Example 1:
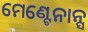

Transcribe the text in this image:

ମେଣ୍ଟେନାନ୍ସ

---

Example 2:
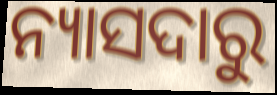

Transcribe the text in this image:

ନ୍ୟାସଦାରୁ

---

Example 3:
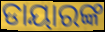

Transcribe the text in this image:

ଡାୟାରଙ୍କ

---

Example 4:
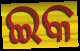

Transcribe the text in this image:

ଇକ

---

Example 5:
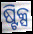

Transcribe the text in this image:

ଷ୍ଟିକ୍ସ